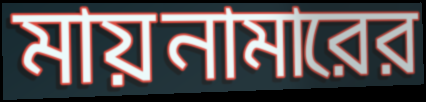
মায়নামারের